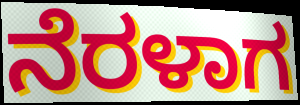
ನೆರಳಾಗ